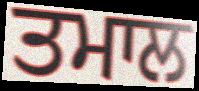
ਤਮਾਲ